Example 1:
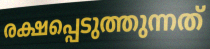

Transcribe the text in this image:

രക്ഷപ്പെടുത്തുന്നത്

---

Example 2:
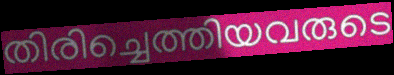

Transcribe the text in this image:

തിരിച്ചെത്തിയവരുടെ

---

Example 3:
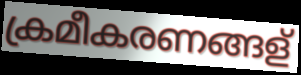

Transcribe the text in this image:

ക്രമീകരണങ്ങള്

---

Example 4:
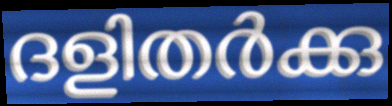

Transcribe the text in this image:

ദളിതർക്കു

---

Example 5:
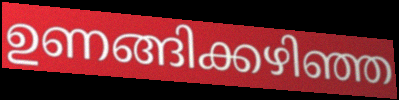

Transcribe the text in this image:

ഉണങ്ങിക്കഴിഞ്ഞ